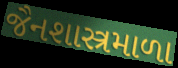
જૈનશાસ્ત્રમાળા